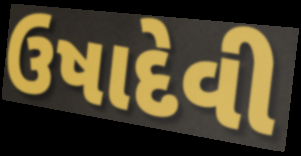
ઉષાદેવી